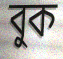
বুক